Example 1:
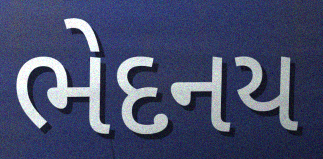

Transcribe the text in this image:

ભેદનય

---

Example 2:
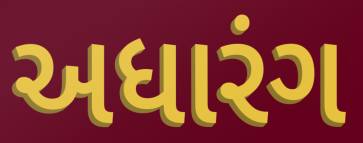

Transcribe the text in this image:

અધારંગ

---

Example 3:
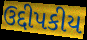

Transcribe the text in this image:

ઉદ્દીપકીય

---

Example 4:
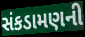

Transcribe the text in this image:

સંકડામણની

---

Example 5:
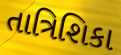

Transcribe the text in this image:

તાત્રિશિકા